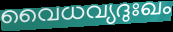
വൈധവ്യദുഃഖം